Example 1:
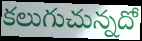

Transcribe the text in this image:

కలుగుచున్నదో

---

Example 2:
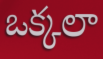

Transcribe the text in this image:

ఒక్కలా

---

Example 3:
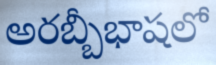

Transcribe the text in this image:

అరబ్బీభాషలో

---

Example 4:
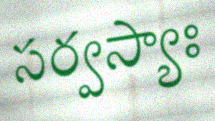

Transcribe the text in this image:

సర్వస్యాః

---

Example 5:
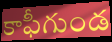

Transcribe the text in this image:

కాఫీగుండ